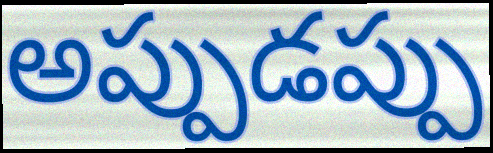
అప్పుడప్పు